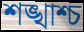
শঙ্খাশ্চ